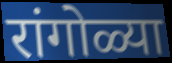
रांगोळ्या